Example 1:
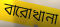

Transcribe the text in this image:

বারোখানা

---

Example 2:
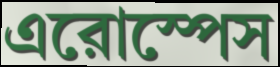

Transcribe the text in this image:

এরোস্পেস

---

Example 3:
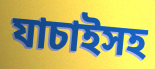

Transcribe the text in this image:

যাচাইসহ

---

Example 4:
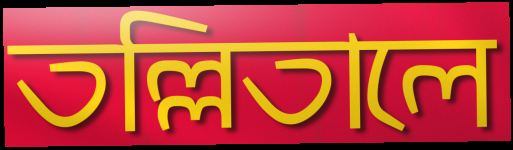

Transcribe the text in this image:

তল্লিতালে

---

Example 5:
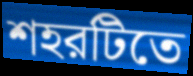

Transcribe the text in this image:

শহরটিতে